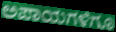
ಅಪಾಯಗಳಿಗೂ